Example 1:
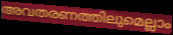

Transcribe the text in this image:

അവതരണത്തിലുമെല്ലാം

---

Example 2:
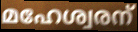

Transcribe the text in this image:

മഹേശ്വരന്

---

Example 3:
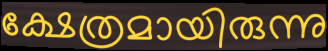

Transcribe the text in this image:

ക്ഷേത്രമായിരുന്നു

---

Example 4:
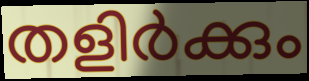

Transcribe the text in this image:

തളിർക്കും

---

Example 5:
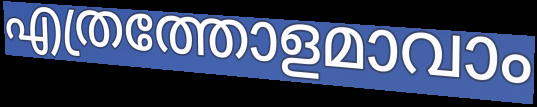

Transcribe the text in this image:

എത്രത്തോളമാവാം